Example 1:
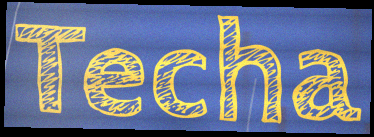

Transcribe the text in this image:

Techa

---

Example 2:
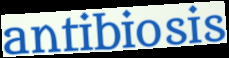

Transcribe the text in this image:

antibiosis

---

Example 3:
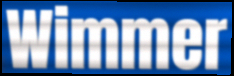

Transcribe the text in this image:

Wimmer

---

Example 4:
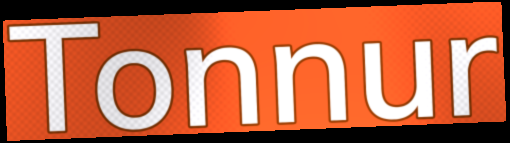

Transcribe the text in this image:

Tonnur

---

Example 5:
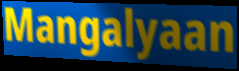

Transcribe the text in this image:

Mangalyaan